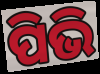
ପିଭି